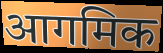
आगमिक